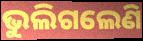
ଭୁଲିଗଲେଣି